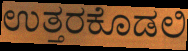
ಉತ್ತರಕೊಡಲಿ